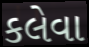
કલેવા